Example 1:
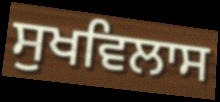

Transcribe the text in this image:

ਸੁਖਵਿਲਾਸ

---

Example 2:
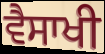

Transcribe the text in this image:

ਵੈਸਾਖੀ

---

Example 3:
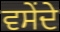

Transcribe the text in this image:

ਵਸੇਂਦੇ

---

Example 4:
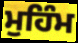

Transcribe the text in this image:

ਮੁਹਿੰਮ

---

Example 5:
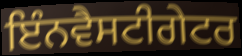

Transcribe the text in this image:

ਇੰਨਵੈਸਟੀਗੇਟਰ